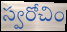
స్వరోచిం